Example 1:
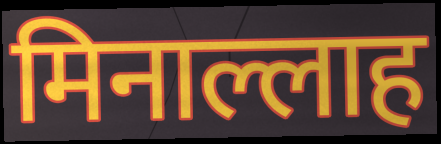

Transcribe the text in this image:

मिनाल्लाह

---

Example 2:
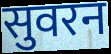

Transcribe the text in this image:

सुवरन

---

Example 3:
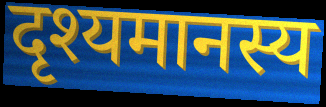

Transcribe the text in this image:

दृश्यमानस्य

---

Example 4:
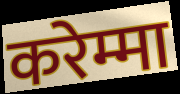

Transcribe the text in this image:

करेम्मा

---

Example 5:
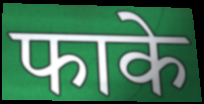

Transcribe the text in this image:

फाके